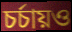
চর্চায়ও